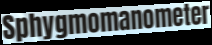
Sphygmomanometer